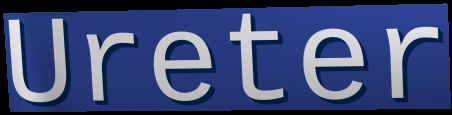
Ureter